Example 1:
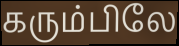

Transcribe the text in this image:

கரும்பிலே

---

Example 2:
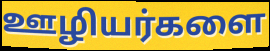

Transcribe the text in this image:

ஊழியர்களை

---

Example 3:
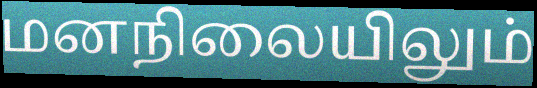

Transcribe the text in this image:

மனநிலையிலும்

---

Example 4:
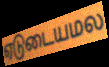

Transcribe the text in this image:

ஏடுடையமல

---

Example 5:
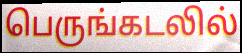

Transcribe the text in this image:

பெருங்கடலில்